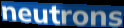
neutrons